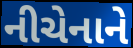
નીચેનાને